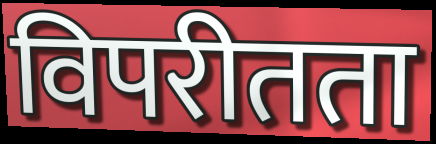
विपरीतता